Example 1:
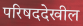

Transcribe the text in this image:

परिषददेखील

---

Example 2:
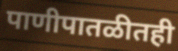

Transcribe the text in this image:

पाणीपातळीतही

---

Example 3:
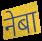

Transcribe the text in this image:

नेबा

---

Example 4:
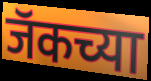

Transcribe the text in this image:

जॅकच्या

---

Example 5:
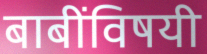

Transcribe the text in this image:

बाबींविषयी